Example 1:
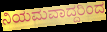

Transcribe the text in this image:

ನಿಯಮವಾದ್ದರಿಂದ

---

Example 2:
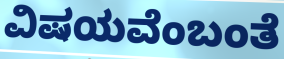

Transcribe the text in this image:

ವಿಷಯವೆಂಬಂತೆ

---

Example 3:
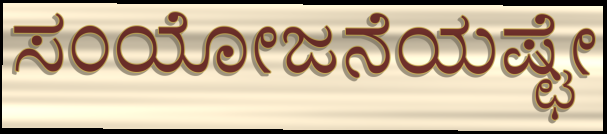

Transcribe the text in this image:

ಸಂಯೋಜನೆಯಷ್ಟೇ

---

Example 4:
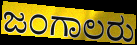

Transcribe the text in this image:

ಜಂಗಾಲರು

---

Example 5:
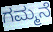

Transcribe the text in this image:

ಗಮ್ಮನೆ